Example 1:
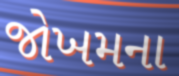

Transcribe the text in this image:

જોખમના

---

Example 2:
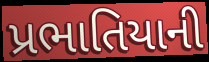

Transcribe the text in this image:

પ્રભાતિયાની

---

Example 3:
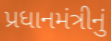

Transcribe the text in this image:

પ્રધાનમંત્રીનું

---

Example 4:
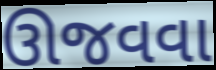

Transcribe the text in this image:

ઊજવવા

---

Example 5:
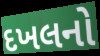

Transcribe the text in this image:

દખલનો